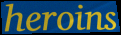
heroins